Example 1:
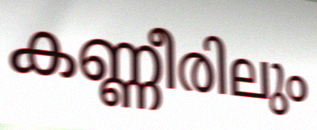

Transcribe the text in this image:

കണ്ണീരിലും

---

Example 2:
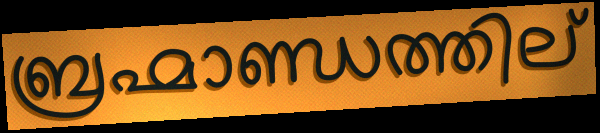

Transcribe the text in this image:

ബ്രഹ്മാണ്ഡത്തില്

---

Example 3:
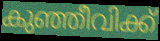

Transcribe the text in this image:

കുഞ്ഞീവിക്ക്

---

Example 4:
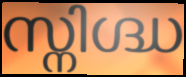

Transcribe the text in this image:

സ്നിഗ്ദ്ധ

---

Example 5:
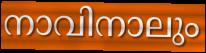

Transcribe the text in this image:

നാവിനാലും